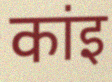
कांइ